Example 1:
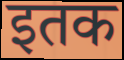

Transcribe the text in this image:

इतक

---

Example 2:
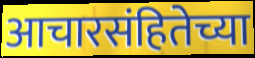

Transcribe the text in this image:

आचारसंहितेच्या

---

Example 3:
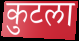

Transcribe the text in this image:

कुटला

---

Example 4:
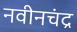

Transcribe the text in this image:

नवीनचंद्र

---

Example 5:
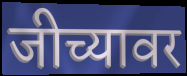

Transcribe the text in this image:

जीच्यावर